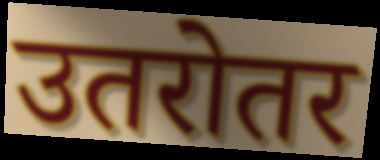
उतरोतर